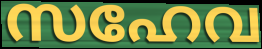
സഹേവ